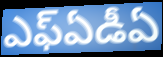
ఎఫ్ఏడీఏ